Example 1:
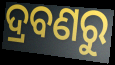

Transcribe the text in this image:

ଦ୍ରବଣରୁ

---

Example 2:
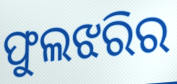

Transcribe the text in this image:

ଫୁଲଝରିର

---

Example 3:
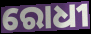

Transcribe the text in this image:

ରୋଧୀ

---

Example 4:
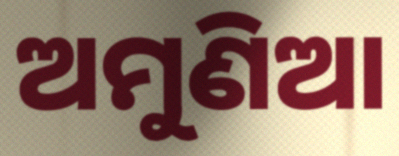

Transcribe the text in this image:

ଅମୁଣିଆ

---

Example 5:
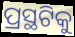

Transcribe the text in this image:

ପ୍ରସ୍ଥଟିକୁ